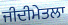
ਜੀਦੀਮੇਤਲਾ